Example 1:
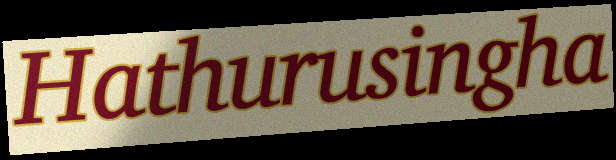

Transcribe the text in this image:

Hathurusingha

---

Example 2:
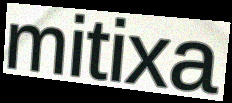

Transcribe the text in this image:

mitixa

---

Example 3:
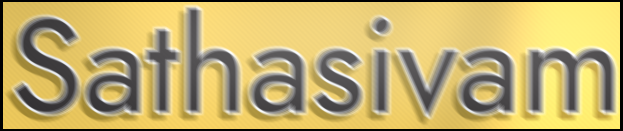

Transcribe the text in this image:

Sathasivam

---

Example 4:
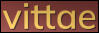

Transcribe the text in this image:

vittae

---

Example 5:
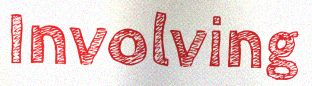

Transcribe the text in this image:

Involving